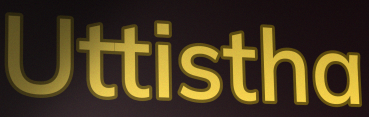
Uttistha